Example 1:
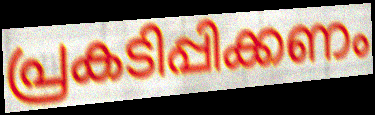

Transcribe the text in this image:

പ്രകടിപ്പിക്കണം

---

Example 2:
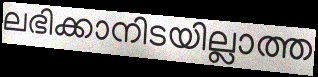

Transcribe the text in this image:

ലഭിക്കാനിടയില്ലാത്ത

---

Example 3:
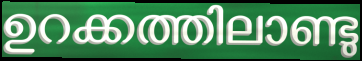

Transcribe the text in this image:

ഉറക്കത്തിലാണ്ടു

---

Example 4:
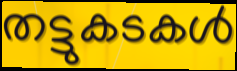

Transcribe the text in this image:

തട്ടുകടകൾ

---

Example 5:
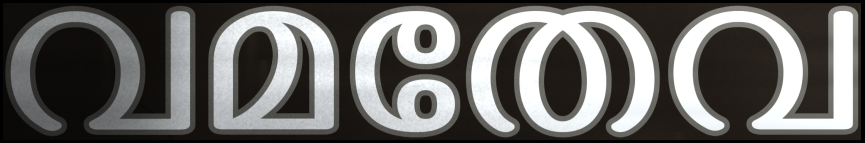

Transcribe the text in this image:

വമതേവ